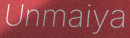
Unmaiya